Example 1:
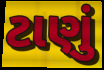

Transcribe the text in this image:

ટાણું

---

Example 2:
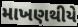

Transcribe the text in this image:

માખણથીયે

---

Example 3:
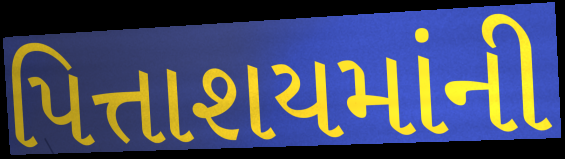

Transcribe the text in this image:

પિત્તાશયમાંની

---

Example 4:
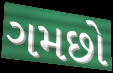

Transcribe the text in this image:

ગમછો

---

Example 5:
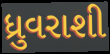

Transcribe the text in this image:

ધ્રુવરાશી